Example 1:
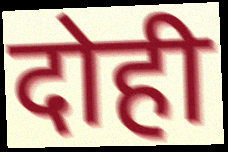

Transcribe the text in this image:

दोही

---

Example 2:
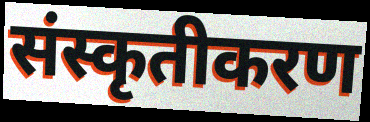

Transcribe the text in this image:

संस्कृतीकरण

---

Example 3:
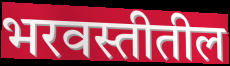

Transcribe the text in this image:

भरवस्तीतील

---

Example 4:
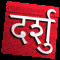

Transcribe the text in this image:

दर्शु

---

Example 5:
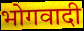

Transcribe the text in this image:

भोगवादी